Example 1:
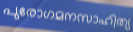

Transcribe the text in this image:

പുരോഗമനസാഹിത്യ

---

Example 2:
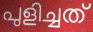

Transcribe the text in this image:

പുളിച്ചത്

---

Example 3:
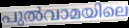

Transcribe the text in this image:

പുൽവാമയിലെ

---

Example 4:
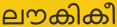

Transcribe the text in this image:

ലൗകികീ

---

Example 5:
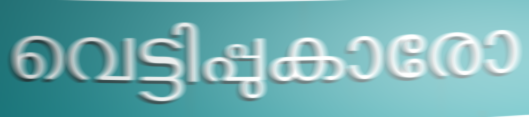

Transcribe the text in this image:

വെട്ടിപ്പുകാരോ